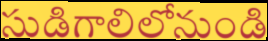
సుడిగాలిలోనుండి